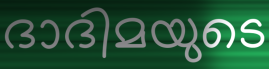
ദാദിമയുടെ